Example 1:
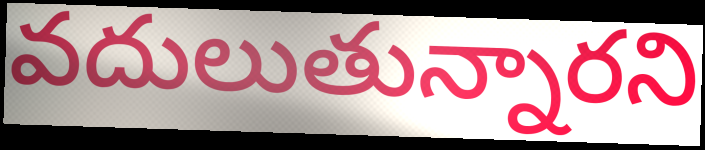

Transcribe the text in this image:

వదులుతున్నారని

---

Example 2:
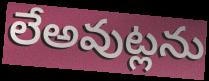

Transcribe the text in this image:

లేఅవుట్లను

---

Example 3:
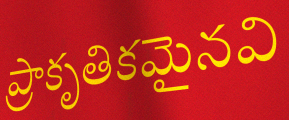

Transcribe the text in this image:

ప్రాకృతికమైనవి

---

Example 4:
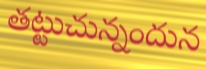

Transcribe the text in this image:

తట్టుచున్నందున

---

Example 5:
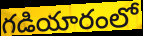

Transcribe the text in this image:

గడియారంలో